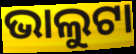
ଭାଲୁଟା